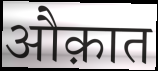
औक़ात